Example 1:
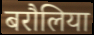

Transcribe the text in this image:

बरौलिया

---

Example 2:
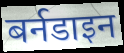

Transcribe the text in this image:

बर्नडाइन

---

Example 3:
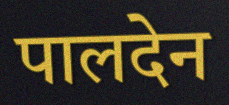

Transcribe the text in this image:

पालदेन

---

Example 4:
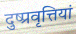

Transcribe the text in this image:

दुष्प्रवृत्तियां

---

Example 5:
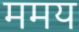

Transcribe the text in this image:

ममय